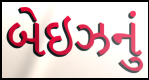
બેઇઝનું